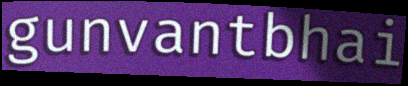
gunvantbhai